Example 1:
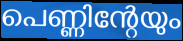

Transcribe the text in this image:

പെണ്ണിന്റേയും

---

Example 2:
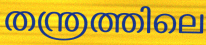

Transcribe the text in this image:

തന്ത്രത്തിലെ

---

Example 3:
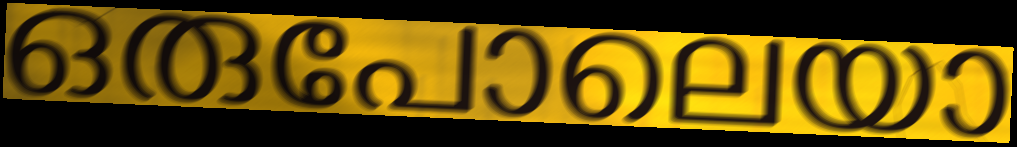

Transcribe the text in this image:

ഒരുപോലെയാ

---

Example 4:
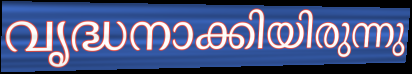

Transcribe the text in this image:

വൃദ്ധനാക്കിയിരുന്നു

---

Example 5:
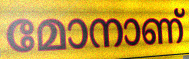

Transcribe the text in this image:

മോനാണ്